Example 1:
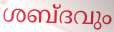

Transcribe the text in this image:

ശബ്ദവും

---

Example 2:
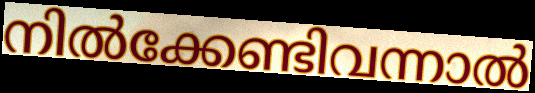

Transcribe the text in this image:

നിൽക്കേണ്ടിവന്നാൽ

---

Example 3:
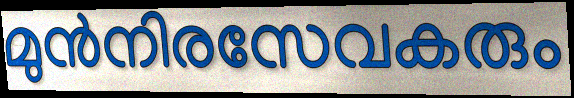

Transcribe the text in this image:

മുൻനിരസേവകരും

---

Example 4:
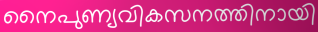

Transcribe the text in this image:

നൈപുണ്യവികസനത്തിനായി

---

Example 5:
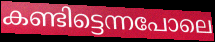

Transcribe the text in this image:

കണ്ടിട്ടെന്നപോലെ